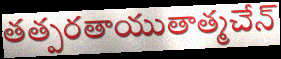
తత్పరతాయుతాత్మచేన్